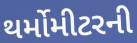
થર્મોમીટરની